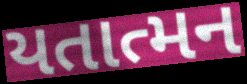
યતાત્મન